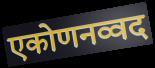
एकोणनव्वद